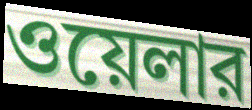
ওয়েলার